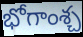
భోగాంశ్చ